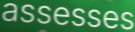
assesses